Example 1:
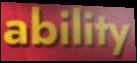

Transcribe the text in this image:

ability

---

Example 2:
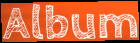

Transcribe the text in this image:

Album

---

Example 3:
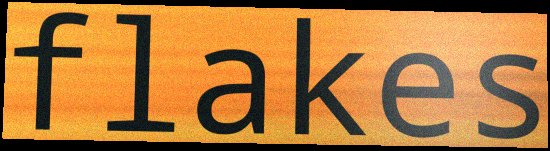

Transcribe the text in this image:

flakes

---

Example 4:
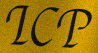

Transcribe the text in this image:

ICP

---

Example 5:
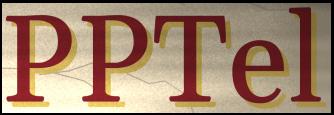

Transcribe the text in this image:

PPTel